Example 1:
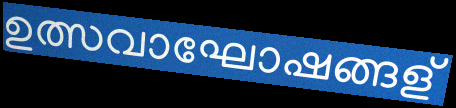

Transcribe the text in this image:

ഉത്സവാഘോഷങ്ങള്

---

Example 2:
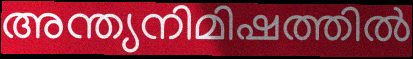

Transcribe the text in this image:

അന്ത്യനിമിഷത്തിൽ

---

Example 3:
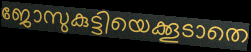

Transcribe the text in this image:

ജോസുകുട്ടിയെക്കൂടാതെ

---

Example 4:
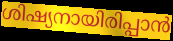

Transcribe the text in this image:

ശിഷ്യനായിരിപ്പാൻ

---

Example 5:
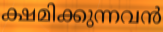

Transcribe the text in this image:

ക്ഷമിക്കുന്നവൻ